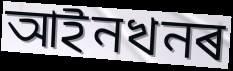
আইনখনৰ